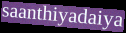
saanthiyadaiya